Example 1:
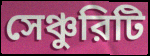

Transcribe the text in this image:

সেঞ্চুরিটি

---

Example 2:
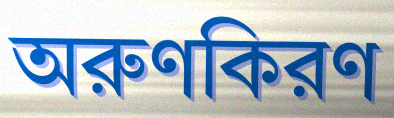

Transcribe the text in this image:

অরুণকিরণ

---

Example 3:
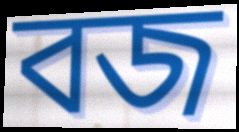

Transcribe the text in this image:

বজ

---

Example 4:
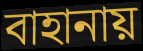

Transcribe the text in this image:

বাহানায়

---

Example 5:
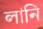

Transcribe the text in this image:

লানি